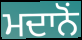
ਮਦਾਨੋਂ